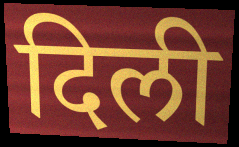
दिली